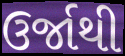
ઉર્જાથી